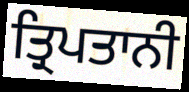
ਤ੍ਰਿਪਤਾਨੀ